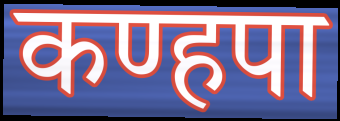
कण्हपा